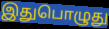
இதுபொழுது